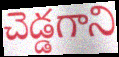
చెడ్డగాని